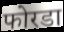
फोरडा